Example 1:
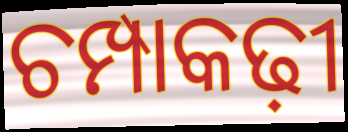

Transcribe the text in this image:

ଚମ୍ପାକଢ଼ୀ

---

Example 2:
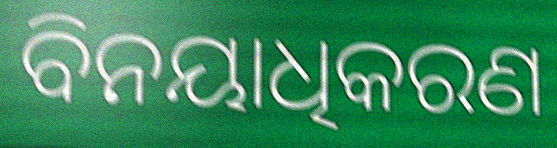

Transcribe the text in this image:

ବିନୟାଧିକରଣ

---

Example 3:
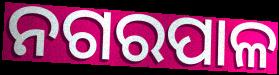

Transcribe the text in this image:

ନଗରପାଳ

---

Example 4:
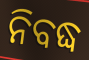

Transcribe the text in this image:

ନିବଦ୍ଧ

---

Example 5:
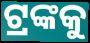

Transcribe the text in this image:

ଟ୍ରଙ୍କକୁ